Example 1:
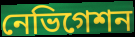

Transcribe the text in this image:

নেভিগেশন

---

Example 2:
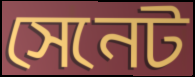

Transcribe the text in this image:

সেনেট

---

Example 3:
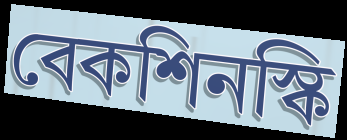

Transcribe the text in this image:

বেকশিনস্কি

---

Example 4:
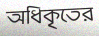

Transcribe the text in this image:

অধিকৃতের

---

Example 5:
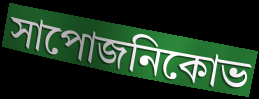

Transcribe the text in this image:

সাপোজনিকোভ